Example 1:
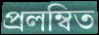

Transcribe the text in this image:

প্রলম্বিত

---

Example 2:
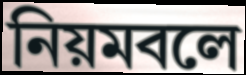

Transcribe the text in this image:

নিয়মবলে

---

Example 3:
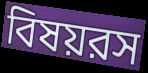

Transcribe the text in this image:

বিষয়রস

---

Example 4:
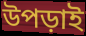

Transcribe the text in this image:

উপড়াই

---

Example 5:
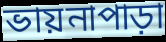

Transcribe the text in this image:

ভায়নাপাড়া